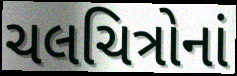
ચલચિત્રોનાં